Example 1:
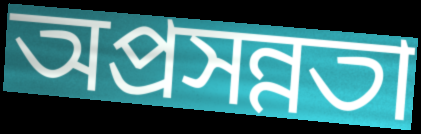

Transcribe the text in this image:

অপ্রসন্নতা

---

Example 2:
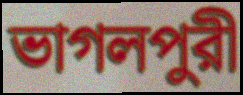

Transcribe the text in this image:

ভাগলপুরী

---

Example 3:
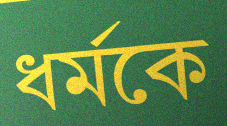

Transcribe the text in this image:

ধর্মকে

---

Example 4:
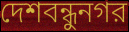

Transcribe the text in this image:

দেশবন্ধুনগর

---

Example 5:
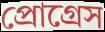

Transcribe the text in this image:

প্রোগ্রেস